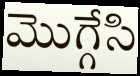
మొగ్గేసి